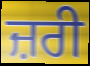
ਜ਼ਰੀ